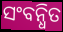
ସଂବନ୍ଧିତ